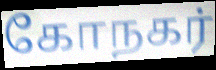
கோநகர்